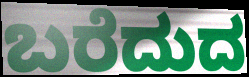
ಬರೆದುದ